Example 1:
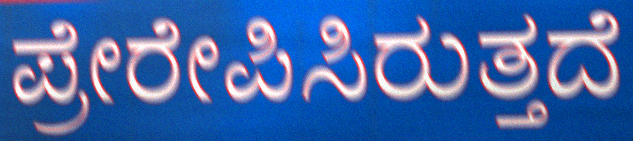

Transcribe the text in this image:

ಪ್ರೇರೇಪಿಸಿರುತ್ತದೆ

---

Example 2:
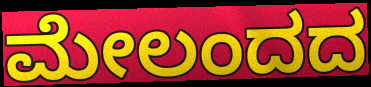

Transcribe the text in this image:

ಮೇಲಂದದ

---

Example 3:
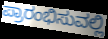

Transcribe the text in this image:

ಪ್ರಾರಂಭಿಸುವಲ್ಲಿ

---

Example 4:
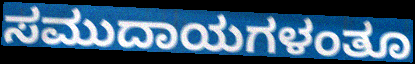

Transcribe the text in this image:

ಸಮುದಾಯಗಳಂತೂ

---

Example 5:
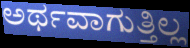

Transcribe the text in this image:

ಅರ್ಥವಾಗುತ್ತಿಲ್ಲ